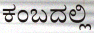
ಕಂಬದಲ್ಲಿ